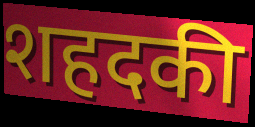
शहदकी